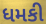
ધમકી